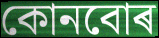
কোনবোৰ